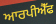
ਆਰਪੀਐੱਫ